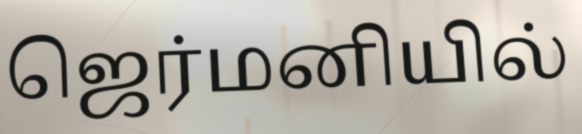
ஜெர்மனியில்